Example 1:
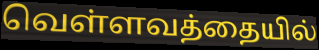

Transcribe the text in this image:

வெள்ளவத்தையில்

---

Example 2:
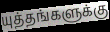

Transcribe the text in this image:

யுத்தங்களுக்கு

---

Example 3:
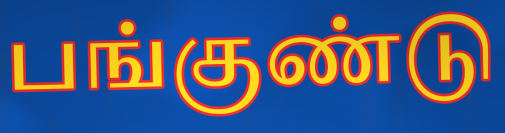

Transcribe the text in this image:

பங்குண்டு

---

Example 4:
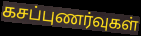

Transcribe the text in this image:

கசப்புணர்வுகள்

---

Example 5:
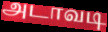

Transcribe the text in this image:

அடாவடி